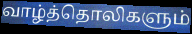
வாழ்த்தொலிகளும்